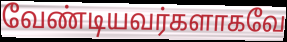
வேண்டியவர்களாகவே